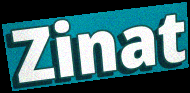
Zinat